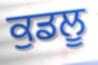
ਕੁਡਲੂ